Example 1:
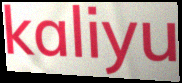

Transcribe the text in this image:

kaliyu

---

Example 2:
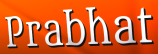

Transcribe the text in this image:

Prabhat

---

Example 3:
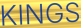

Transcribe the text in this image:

KINGS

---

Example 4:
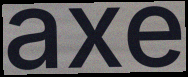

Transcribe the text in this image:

axe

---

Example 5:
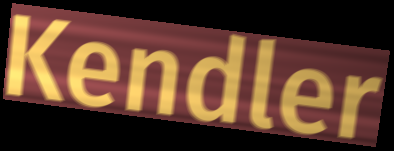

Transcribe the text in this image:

Kendler